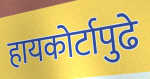
हायकोर्टापुढे